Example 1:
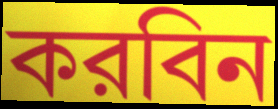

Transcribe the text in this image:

করবিন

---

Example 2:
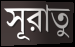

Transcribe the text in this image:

সূরাতু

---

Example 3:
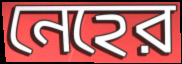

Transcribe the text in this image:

নেহের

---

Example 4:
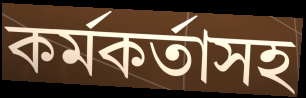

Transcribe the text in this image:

কর্মকর্তাসহ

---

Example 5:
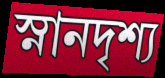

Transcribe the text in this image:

স্নানদৃশ্য